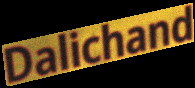
Dalichand